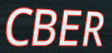
CBER